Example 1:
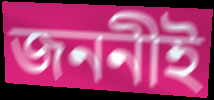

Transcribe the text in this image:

জননীই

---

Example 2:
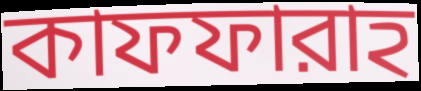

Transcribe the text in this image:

কাফফারাহ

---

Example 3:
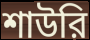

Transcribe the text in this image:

শাউরি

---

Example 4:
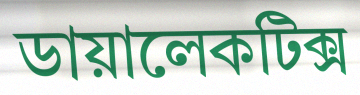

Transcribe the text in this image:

ডায়ালেকটিক্স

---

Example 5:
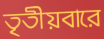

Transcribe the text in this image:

তৃতীয়বারে